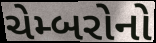
ચેમ્બરોનો